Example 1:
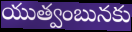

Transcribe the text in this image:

యుత్వంబునకు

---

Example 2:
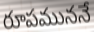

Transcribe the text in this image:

రూపముననే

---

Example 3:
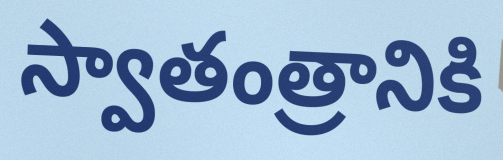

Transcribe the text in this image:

స్వాతంత్రానికి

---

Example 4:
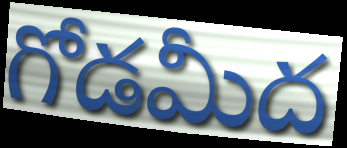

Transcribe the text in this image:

గోడమీద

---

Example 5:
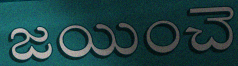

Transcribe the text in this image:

జయించె